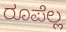
ರೂಪೆಲ್ಲ